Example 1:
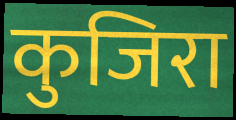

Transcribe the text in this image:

कुजिरा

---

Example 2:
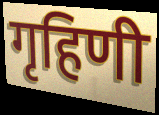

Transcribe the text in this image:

गृहिणी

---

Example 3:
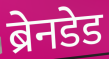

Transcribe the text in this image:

ब्रेनडेड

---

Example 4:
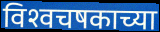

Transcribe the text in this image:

विश्वचषकाच्या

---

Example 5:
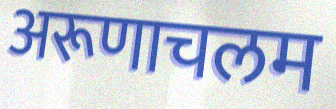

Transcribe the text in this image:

अरूणाचलम